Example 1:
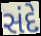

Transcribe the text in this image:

સંદે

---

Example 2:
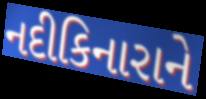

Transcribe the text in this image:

નદીકિનારાને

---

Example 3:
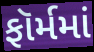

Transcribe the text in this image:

ફૉર્મમાં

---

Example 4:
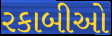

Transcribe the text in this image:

રકાબીઓ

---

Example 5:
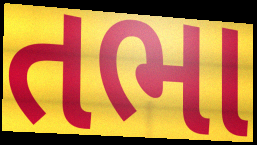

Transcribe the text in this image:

તભા